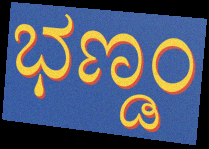
ಭಣ್ಡಂ